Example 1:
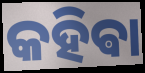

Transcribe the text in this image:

କହିଵା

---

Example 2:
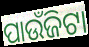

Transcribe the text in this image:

ପାଉଁଜିଟା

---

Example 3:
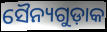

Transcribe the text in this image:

ସୈନ୍ୟଗୁଡ଼ାକ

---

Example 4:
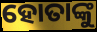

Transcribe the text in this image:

ହୋତାଙ୍କୁ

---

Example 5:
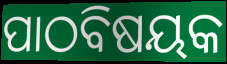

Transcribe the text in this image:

ପାଠବିଷୟକ